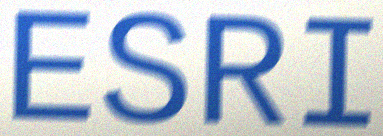
ESRI